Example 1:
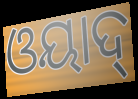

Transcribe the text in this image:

ଓୟାଦ୍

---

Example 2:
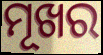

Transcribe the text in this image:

ମୂଖର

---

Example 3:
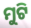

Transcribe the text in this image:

ମୁଟି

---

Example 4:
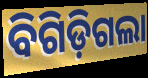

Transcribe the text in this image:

ବିଗିଡ଼ିଗଲା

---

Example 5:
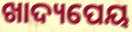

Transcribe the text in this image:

ଖାଦ୍ୟପେୟ